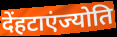
देंहटाएंज्योति